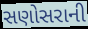
સણોસરાની